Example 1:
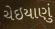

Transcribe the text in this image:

ચેઇયાણું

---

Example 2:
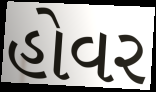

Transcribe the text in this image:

હોવર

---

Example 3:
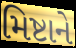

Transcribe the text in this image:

મિષ્ટાને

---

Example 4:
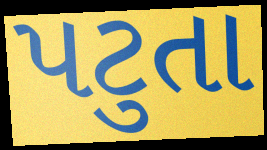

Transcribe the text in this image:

પટુતા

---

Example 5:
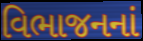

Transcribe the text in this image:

વિભાજનનાં